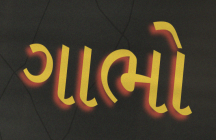
ગાભો